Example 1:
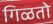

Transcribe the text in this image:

गिळतो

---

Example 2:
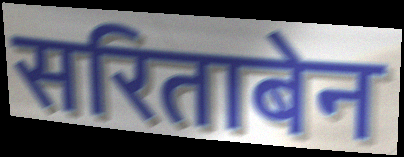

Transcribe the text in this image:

सरिताबेन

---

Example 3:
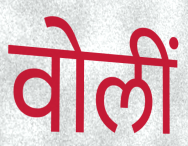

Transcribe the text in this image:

वोलीं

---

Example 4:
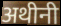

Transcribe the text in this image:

अथीनी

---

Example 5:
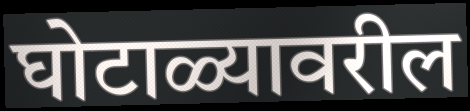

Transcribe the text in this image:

घोटाळ्यावरील